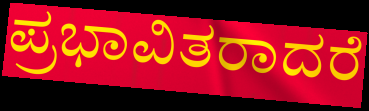
ಪ್ರಭಾವಿತರಾದರೆ